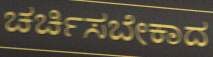
ಚರ್ಚಿಸಬೇಕಾದ